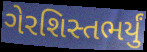
ગેરશિસ્તભર્યું